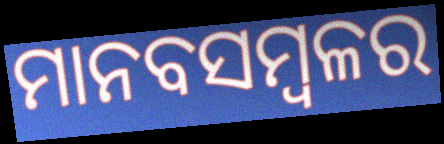
ମାନବସମ୍ବଳର